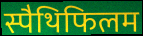
स्पैथिफिलम